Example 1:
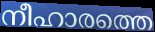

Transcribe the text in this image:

നീഹാരത്തെ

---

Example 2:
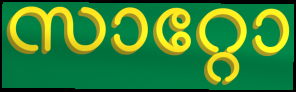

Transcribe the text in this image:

സാറ്റോ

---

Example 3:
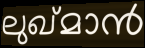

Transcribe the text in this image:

ലുഖ്മാൻ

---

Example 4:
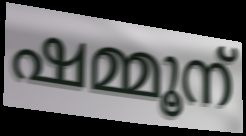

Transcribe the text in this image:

ഷമ്മൂന്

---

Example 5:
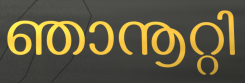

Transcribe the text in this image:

ഞാനൂറ്റി